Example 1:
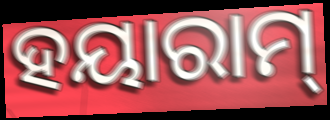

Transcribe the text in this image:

ହୟାରାମ୍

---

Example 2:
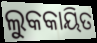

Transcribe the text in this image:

ଲୁକକାୟିତ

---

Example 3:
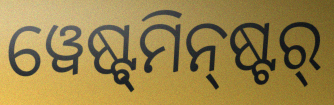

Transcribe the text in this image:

ୱେଷ୍ଟ୍‌ମିନ୍‌ଷ୍ଟର୍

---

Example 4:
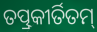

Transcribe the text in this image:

ତତ୍ପ୍ରକୀର୍ତିତମ୍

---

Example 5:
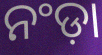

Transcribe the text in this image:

ନଂଡ଼ା